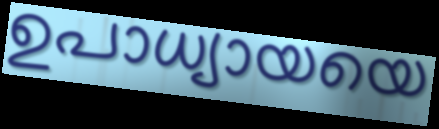
ഉപാധ്യായയെ